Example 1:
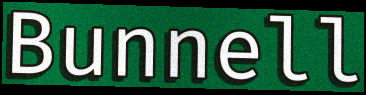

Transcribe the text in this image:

Bunnell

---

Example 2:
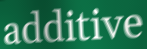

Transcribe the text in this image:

additive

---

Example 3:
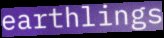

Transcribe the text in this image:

earthlings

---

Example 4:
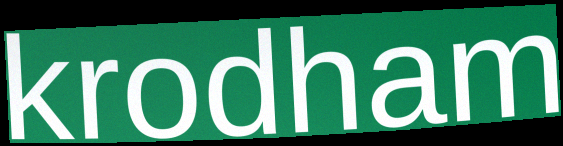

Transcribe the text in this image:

krodham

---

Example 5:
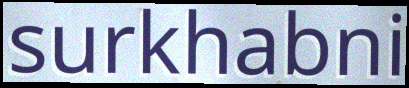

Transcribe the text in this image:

surkhabni